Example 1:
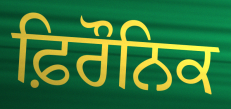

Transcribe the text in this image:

ਫ਼ਿਰੌਨਿਕ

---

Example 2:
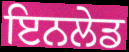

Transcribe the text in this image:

ਇਨਲੇਡ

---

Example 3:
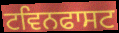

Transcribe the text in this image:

ਟਵਿਨਫਾਸਟ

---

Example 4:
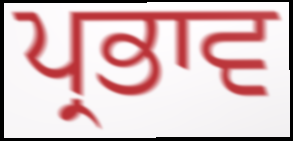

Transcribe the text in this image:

ਪ੍ਰਭਾਵ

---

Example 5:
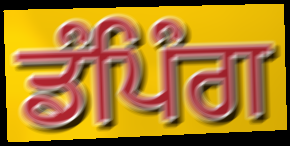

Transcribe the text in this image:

ਡੰਪਿੰਗ